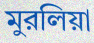
মুরলিয়া